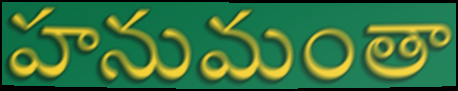
హనుమంతా